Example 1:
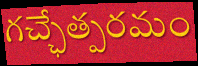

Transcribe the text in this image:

గచ్ఛేత్పరమం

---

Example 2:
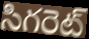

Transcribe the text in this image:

సిగరెట్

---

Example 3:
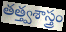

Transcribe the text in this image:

తత్త్వశాస్త్రం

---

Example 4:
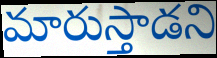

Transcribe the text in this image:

మారుస్తాడని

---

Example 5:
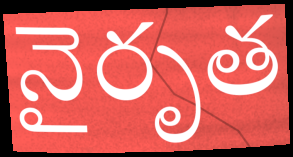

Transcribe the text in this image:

నైరృత